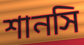
শানসি